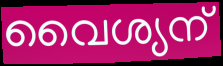
വൈശ്യന്